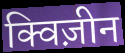
क्विज़ीन